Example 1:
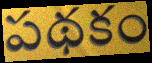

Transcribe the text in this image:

పథకం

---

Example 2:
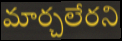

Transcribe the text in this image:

మార్చలేరని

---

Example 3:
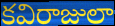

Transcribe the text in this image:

కవిరాజులా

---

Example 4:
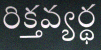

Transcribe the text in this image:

రిక్తవ్యర్థ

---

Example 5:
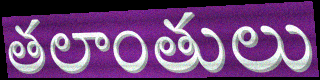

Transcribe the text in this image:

తలాంతులు